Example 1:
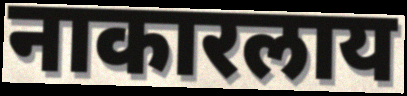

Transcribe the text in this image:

नाकारलाय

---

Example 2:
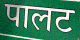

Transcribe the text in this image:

पालट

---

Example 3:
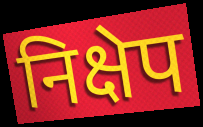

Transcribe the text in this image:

निक्षेप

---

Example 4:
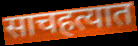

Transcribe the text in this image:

साचहत्यात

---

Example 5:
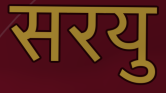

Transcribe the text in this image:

सरयु